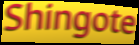
Shingote